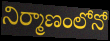
నిర్మాణంలోనో